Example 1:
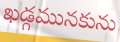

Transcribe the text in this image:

ఖడ్గమునకును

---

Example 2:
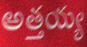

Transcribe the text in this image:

అత్తయ్య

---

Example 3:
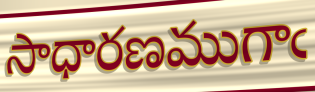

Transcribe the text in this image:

సాధారణముగాఁ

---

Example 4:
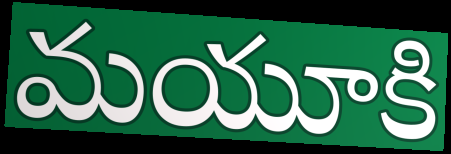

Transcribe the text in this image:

మయూకి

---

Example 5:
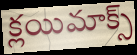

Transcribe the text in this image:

క్లయిమాక్స్